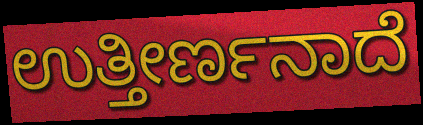
ಉತ್ತೀರ್ಣನಾದೆ